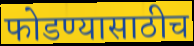
फोडण्यासाठीच